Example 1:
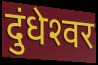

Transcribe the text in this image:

दुंधेश्वर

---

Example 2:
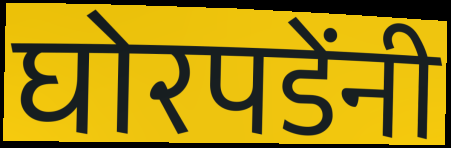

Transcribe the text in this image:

घोरपडेंनी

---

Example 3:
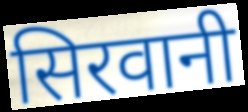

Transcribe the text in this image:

सिरवानी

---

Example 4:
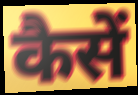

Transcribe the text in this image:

कैसें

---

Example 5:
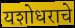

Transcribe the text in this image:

यशोधराचे